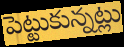
పెట్టుకున్నట్లు